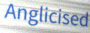
Anglicised